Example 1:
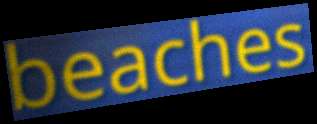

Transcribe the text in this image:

beaches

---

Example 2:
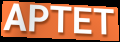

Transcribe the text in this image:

APTET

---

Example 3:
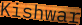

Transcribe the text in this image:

Kishwar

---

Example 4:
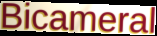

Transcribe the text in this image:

Bicameral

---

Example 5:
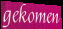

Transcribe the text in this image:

gekomen